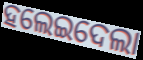
ହଲେଇଦେଲା